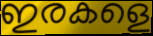
ഇരകളെ